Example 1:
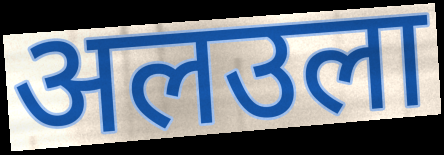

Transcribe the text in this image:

अलउला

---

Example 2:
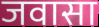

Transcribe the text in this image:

जवासा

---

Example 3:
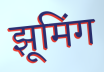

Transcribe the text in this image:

झूमिंग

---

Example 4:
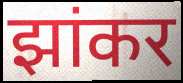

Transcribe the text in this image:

झांकर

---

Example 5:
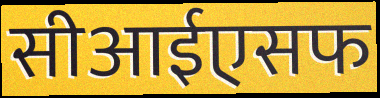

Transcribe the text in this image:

सीआईएसफ